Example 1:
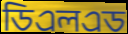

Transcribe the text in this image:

ডিএলএড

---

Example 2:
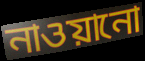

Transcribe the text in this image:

নাওয়ানো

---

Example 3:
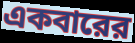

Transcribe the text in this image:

একবারের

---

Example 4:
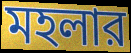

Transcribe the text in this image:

মহলার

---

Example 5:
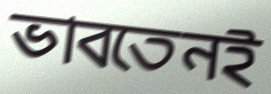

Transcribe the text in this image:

ভাবতেনই